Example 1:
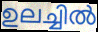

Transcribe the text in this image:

ഉലച്ചിൽ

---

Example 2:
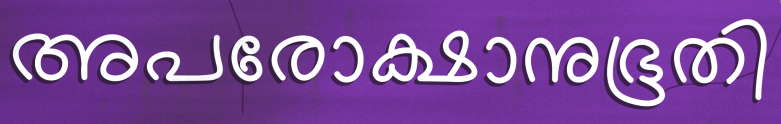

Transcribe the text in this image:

അപരോക്ഷാനുഭൂതി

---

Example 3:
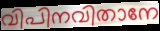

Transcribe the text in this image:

വിപിനവിതാനേ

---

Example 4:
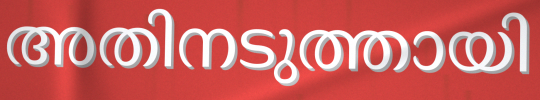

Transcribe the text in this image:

അതിനടുത്തായി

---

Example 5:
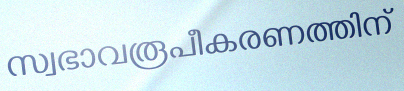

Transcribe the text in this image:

സ്വഭാവരൂപീകരണത്തിന്